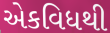
એકવિધથી